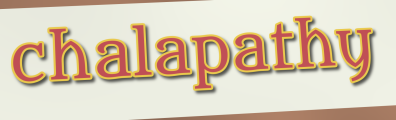
chalapathy